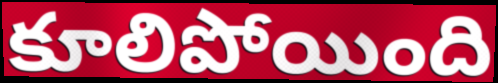
కూలిపోయింది